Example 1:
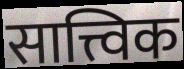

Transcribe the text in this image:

सात्त्विक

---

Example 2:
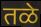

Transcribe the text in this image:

तळे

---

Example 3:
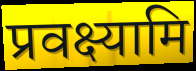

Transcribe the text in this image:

प्रवक्ष्यामि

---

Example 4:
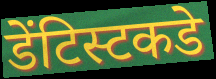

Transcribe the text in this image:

डेंटिस्टकडे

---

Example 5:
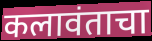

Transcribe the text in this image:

कलावंताचा